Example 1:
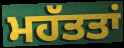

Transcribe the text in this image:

ਮਹੱਤਤਾਂ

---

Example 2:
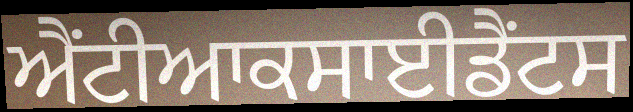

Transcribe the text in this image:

ਐਂਟੀਆਕਸਾਈਡੈਂਟਸ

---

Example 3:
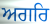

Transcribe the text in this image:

ਅਗਰਿ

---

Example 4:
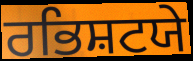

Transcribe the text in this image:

ਰਭਿਸ਼ਟਯੇ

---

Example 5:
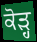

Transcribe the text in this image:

ਕੋੜ੍ਹ